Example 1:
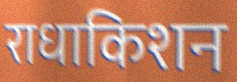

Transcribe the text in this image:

राधाकिशन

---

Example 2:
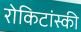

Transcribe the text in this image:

रोकिटांस्की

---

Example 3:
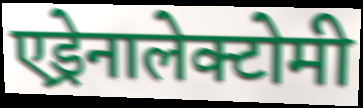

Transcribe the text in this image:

एड्रेनालेक्टोमी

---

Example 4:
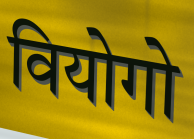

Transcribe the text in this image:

वियोगो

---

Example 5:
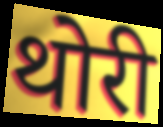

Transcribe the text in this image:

थोरी